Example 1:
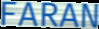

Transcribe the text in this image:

FARAN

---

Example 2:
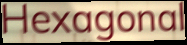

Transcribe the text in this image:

Hexagonal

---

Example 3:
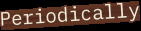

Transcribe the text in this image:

Periodically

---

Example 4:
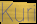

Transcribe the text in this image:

Kuri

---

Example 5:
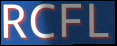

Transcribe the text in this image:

RCFL